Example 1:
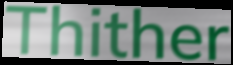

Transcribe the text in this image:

Thither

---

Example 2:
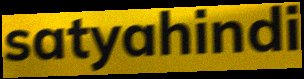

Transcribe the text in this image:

satyahindi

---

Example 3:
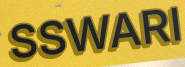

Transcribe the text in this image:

SSWARI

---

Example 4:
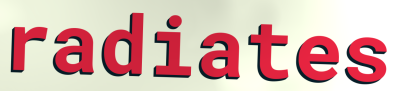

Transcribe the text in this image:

radiates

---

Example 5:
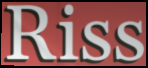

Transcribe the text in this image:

Riss